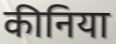
कीनिया